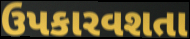
ઉપકારવશતા